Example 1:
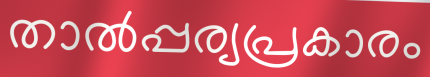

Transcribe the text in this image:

താൽപ്പര്യപ്രകാരം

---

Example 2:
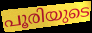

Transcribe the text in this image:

പൂരിയുടെ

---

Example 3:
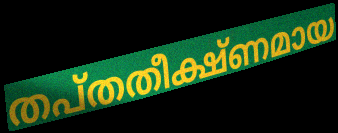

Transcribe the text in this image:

തപ്തതീക്ഷ്ണമായ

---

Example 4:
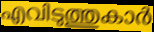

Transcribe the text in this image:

എവിടുത്തുകാർ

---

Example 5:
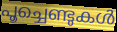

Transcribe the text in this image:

പൂച്ചെണ്ടുകൾ